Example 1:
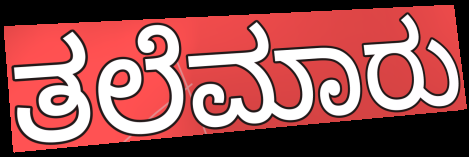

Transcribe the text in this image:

ತಲೆಮಾರು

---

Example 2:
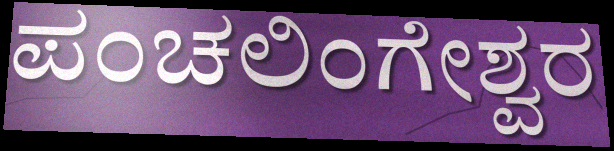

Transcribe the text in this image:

ಪಂಚಲಿಂಗೇಶ್ವರ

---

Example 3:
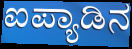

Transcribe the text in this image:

ಐಪ್ಯಾಡಿನ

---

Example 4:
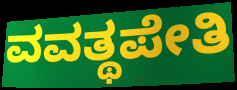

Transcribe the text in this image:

ವವತ್ಥಪೇತಿ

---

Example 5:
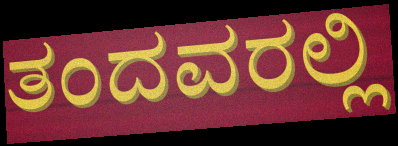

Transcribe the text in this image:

ತಂದವರಲ್ಲಿ